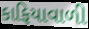
કાફિયાવાળી